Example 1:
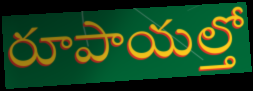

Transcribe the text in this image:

రూపాయల్తో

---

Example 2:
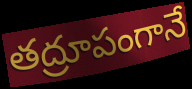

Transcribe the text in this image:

తద్రూపంగానే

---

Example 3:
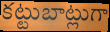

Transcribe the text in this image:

కట్టుబాట్లుగా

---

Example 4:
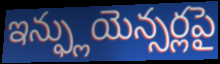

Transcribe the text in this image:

ఇన్ఫ్లుయెన్సర్లపై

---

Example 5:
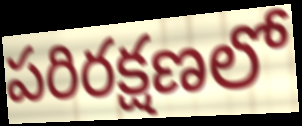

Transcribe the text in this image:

పరిరక్షణలో